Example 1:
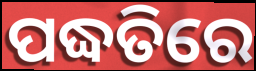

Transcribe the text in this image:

ପଦ୍ଧତିରେ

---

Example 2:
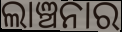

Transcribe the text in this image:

ଲାଞ୍ଚନାର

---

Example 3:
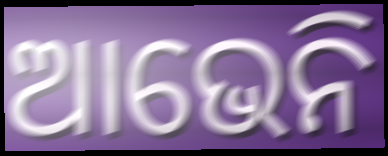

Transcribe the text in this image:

ଆଭେନି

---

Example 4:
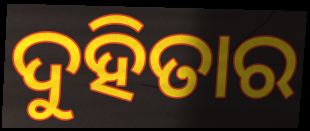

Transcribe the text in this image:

ଦୁହିତାର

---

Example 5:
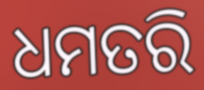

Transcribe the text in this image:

ଧମତରି